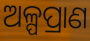
ଅଳ୍ପପ୍ରାଣ